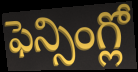
ఫెన్సింగ్లో